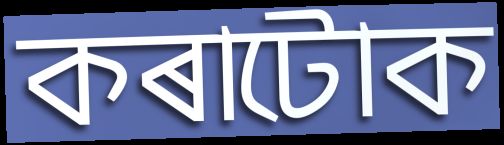
কৰাটোক